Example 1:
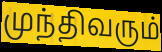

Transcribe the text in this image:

முந்திவரும்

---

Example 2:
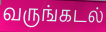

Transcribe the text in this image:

வருங்கடல்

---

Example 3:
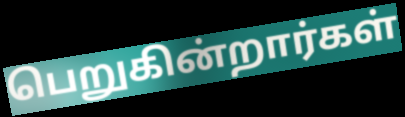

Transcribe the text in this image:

பெறுகின்றார்கள்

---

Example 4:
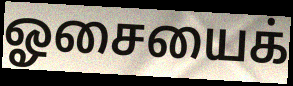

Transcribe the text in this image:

ஓசையைக்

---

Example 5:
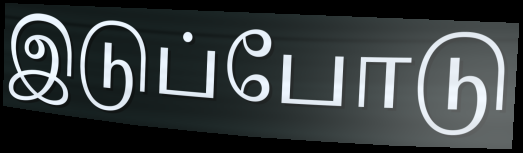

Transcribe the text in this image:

இடுப்போடு